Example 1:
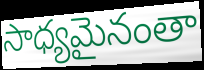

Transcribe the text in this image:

సాధ్యమైనంతా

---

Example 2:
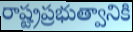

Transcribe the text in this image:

రాష్ట్రప్రభుత్వానికి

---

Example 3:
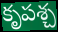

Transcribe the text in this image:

కృపశ్చ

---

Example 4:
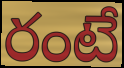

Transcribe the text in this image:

రంటే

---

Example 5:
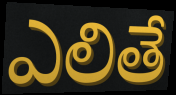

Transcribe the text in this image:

ఎలితే